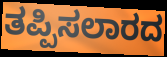
ತಪ್ಪಿಸಲಾರದ